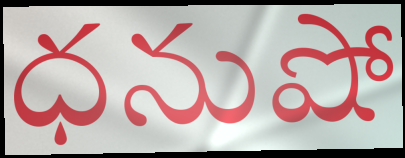
ధనుషో